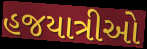
હજયાત્રીઓ